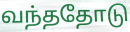
வந்ததோடு